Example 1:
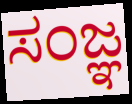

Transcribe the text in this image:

ಸಂಜ್ಞ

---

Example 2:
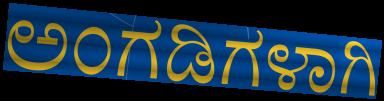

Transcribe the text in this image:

ಅಂಗಡಿಗಳಾಗಿ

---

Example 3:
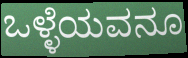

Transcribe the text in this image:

ಒಳ್ಳೆಯವನೂ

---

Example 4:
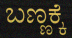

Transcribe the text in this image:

ಬಣ್ಣಕ್ಕೆ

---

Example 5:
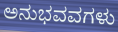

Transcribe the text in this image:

ಅನುಭವವಗಳು